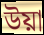
উয়া